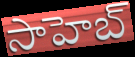
సాహెబ్